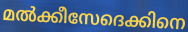
മൽക്കീസേദെക്കിനെ